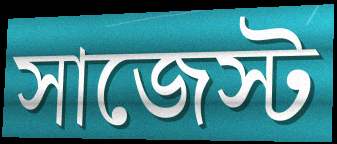
সাজেস্ট